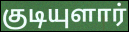
குடியுளார்